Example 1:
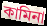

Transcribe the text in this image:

কামিনা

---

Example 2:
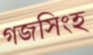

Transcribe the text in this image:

গজসিংহ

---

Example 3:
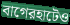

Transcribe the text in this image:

বাগেরহাটেও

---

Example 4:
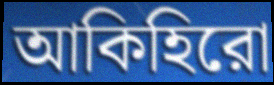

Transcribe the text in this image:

আকিহিরো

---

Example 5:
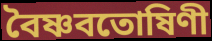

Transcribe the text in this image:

বৈষ্ণবতোষিণী